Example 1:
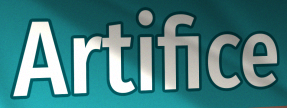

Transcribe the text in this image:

Artifice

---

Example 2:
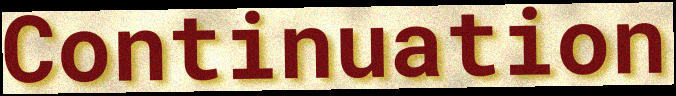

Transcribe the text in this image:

Continuation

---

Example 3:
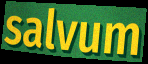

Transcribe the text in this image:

salvum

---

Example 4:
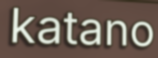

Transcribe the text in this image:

katano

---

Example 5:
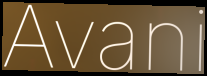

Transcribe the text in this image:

Avani